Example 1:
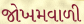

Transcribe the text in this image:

જોખમવાળી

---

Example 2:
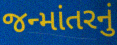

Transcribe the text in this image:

જન્માંતરનું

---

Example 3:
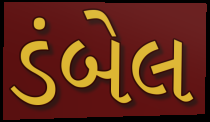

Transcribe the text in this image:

ડંબેલ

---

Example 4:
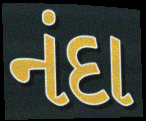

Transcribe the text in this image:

નંદા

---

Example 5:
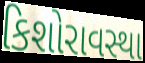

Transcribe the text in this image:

કિશોરાવસ્થા